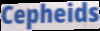
Cepheids